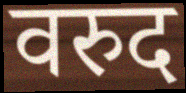
वरुद